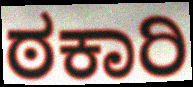
ಠಕಾರಿ